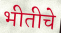
भीतीचे